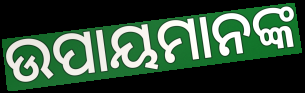
ଉପାୟମାନଙ୍କ